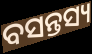
ବସନ୍ତସ୍ୟ